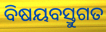
ବିଷୟବସ୍ତୁଗତ